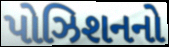
પોઝિશનનો